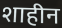
शाहीन